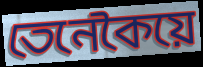
তেনেকৈয়ে